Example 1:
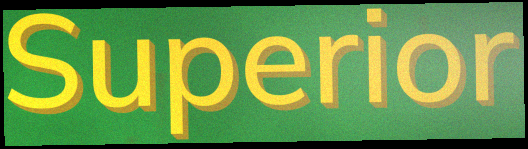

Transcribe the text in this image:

Superior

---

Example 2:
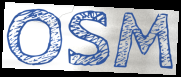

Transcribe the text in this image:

OSM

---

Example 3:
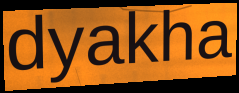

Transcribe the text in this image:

dyakha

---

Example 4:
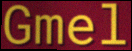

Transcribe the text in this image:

Gmel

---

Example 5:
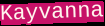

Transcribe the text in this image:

Kayvanna